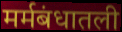
मर्मबंधातली